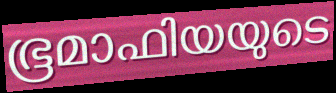
ഭൂമാഫിയയുടെ